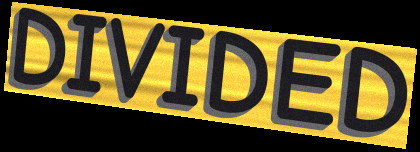
DIVIDED